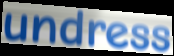
undress